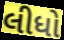
લીધો